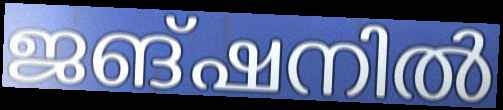
ജങ്ഷനിൽ